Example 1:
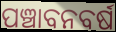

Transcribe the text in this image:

ପଞ୍ଚାବନବର୍ଷ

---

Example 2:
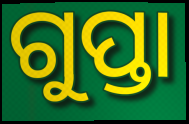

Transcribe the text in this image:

ଗୁପ୍ତା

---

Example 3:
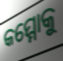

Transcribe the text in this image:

କମ୍ମୋକୁ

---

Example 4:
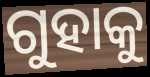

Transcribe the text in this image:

ଗୁହାକୁ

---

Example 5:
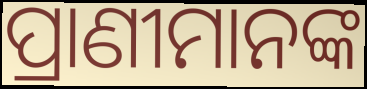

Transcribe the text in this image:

ପ୍ରାଣୀମାନଙ୍କ